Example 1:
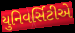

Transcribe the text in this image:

યુનિવર્સિટીએ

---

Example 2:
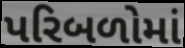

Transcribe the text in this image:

પરિબળોમાં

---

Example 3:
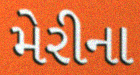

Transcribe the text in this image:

મેરીના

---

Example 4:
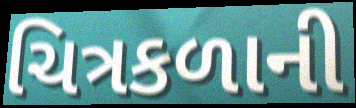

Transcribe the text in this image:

ચિત્રકળાની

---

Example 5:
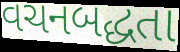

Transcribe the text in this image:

વચનબદ્ધતા